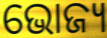
ଭୋଜ୍ୟ